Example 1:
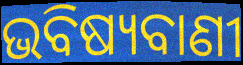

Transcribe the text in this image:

ଭବିଷ୍ଯବାଣୀ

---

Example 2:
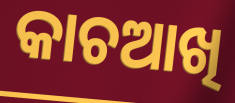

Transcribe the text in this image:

କାଚଆଖି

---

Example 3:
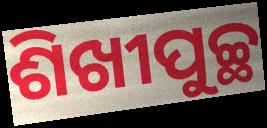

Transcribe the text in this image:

ଶିଖୀପୁଚ୍ଛ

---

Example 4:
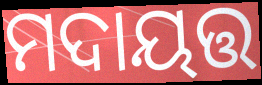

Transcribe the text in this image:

ମଦାୟତ୍ତ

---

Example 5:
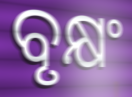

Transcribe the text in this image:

ବୃକ୍ଷଂ